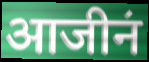
आजीनं